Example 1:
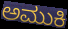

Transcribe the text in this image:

ಅಮುಕಿ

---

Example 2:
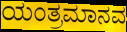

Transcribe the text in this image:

ಯಂತ್ರಮಾನವ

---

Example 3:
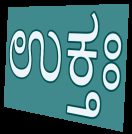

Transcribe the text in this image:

ಉಕ್ತಃ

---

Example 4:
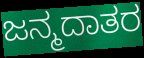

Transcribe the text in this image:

ಜನ್ಮದಾತರ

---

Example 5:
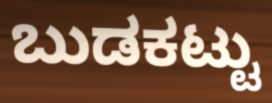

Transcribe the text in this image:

ಬುಡಕಟ್ಟು